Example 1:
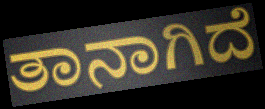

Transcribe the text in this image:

ತಾನಾಗಿದೆ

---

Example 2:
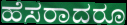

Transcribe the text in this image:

ಹೆಸರಾದರೂ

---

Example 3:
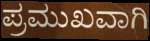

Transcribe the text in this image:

ಪ್ರಮುಖವಾಗಿ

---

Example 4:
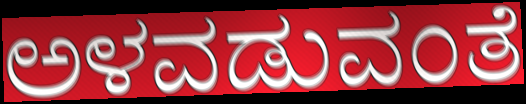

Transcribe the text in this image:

ಅಳವಡುವಂತೆ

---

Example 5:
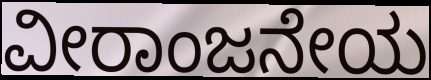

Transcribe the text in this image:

ವೀರಾಂಜನೇಯ